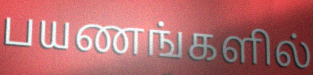
பயணங்களில்